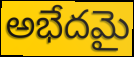
అభేదమై